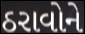
ઠરાવોને